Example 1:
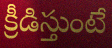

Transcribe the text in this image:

క్రీడిస్తుంటే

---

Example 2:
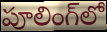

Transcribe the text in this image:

పూలింగ్‌లో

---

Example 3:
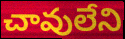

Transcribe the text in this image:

చావులేని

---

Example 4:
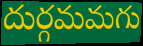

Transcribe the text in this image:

దుర్గమమగు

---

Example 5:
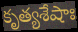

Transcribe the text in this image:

కృత్యశేషాః